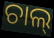
ଚାଲ୍